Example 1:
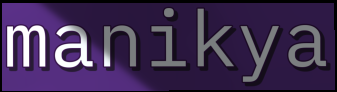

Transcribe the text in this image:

manikya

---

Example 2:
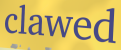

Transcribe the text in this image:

clawed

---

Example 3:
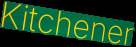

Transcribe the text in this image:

Kitchener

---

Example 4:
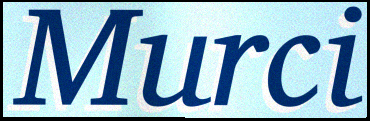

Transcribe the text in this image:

Murci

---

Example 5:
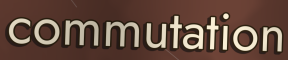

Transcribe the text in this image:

commutation